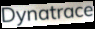
Dynatrace